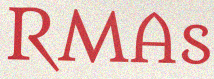
RMAs